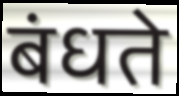
बंधते